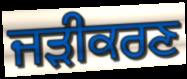
ਜੜੀਕਰਣ